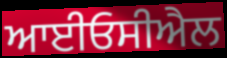
ਆਈਓਸੀਐਲ